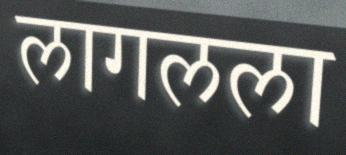
लागलला